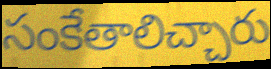
సంకేతాలిచ్చారు